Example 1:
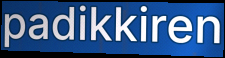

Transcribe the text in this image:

padikkiren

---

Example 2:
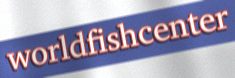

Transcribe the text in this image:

worldfishcenter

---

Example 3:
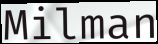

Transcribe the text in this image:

Milman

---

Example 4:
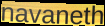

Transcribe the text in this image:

navaneth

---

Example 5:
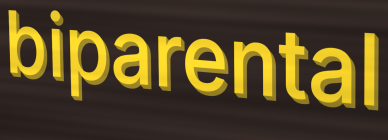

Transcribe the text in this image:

biparental